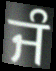
ਜੰ